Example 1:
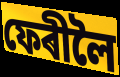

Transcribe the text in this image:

ফেৰীলৈ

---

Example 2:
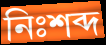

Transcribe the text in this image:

নিঃশব্দ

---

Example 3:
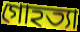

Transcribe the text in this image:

গোহত্যা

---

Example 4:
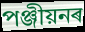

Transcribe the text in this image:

পঞ্জীয়নৰ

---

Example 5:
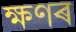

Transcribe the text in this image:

ক্ষণৰ